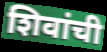
शिवांची